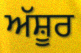
ਅੱਸ਼ੂਰ